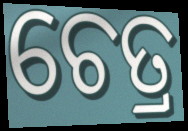
ଚେତ୍ର